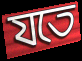
যতে